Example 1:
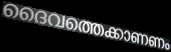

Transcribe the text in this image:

ദൈവത്തെക്കാണണം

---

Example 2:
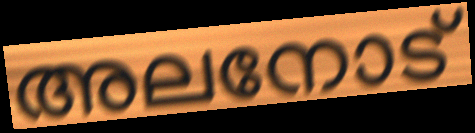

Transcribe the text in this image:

അലനോട്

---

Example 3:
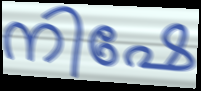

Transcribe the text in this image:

നിഷേ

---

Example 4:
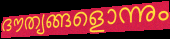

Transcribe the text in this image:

ദൗത്യങ്ങളൊന്നും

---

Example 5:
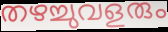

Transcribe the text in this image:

തഴച്ചുവളരും